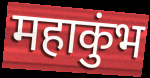
महाकुंभ